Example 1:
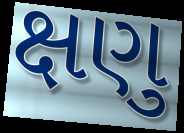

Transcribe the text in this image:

ક્ષણુ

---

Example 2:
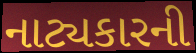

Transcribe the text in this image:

નાટ્યકારની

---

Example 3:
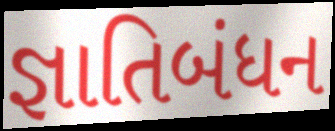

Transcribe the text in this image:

જ્ઞાતિબંધન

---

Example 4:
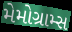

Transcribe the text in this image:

મેમોગ્રામ્સ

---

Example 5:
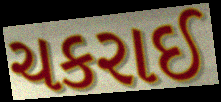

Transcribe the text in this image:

ચકરાઈ